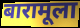
बारामूला